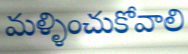
మళ్ళించుకోవాలి